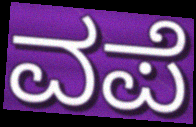
ವಪೆ